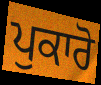
ਪੁਕਾਰੋ